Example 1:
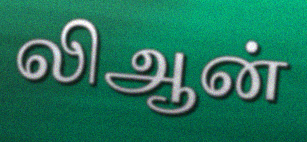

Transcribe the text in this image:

லிஆன்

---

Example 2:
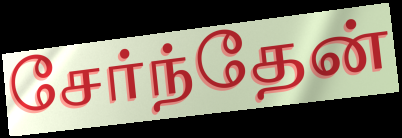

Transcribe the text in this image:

சேர்ந்தேன்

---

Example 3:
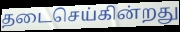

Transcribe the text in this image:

தடைசெய்கின்றது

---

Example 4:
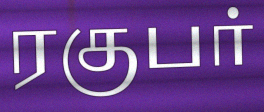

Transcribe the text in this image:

ரகுபர்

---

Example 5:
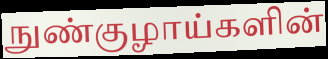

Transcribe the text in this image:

நுண்குழாய்களின்